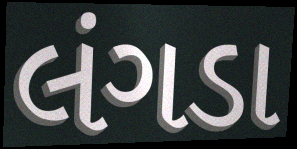
લંગડા